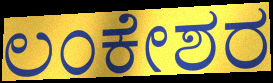
ಲಂಕೇಶರ